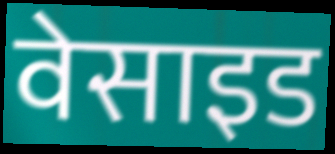
वेसाइड